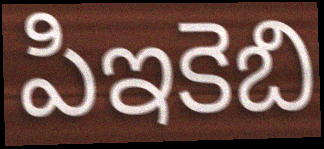
పిఇకెబి